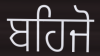
ਬਹਿਜੋ